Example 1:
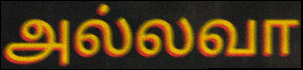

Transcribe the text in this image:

அல்லவா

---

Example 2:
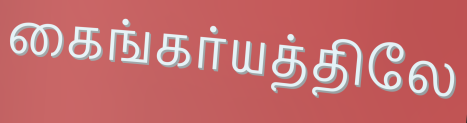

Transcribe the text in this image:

கைங்கர்யத்திலே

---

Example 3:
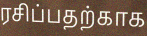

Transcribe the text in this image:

ரசிப்பதற்காக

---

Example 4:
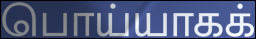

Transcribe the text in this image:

பொய்யாகக்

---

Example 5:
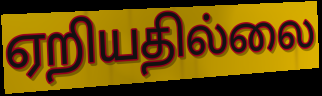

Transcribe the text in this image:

ஏறியதில்லை